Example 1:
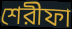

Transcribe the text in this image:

শেরীফা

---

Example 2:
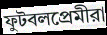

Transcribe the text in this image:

ফুটবলপ্রেমীরা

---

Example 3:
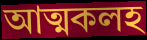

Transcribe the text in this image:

আত্মকলহ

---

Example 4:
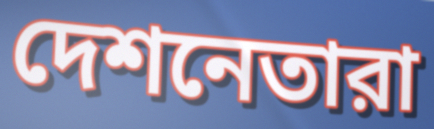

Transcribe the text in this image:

দেশনেতারা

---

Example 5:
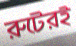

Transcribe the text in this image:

রুটেরই